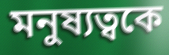
মনুষ্যত্বকে